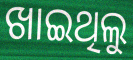
ଖାଇଥିଲୁ